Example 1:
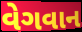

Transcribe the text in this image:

વેગવાન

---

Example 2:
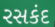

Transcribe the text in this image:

રસકંદ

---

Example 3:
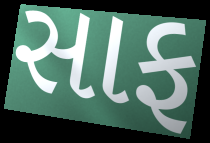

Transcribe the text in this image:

સાફ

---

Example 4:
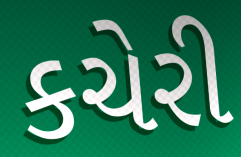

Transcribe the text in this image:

કચેરી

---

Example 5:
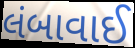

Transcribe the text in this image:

લંબાવાઈ